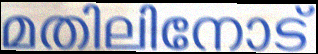
മതിലിനോട്